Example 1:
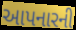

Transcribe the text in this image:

આપનારની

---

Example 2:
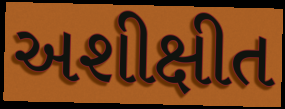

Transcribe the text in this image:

અશીક્ષીત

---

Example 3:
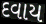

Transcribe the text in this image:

દવાય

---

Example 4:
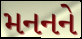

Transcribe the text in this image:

મનનને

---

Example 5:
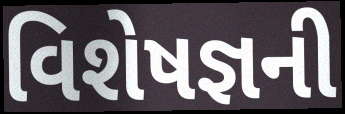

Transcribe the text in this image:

વિશેષજ્ઞની